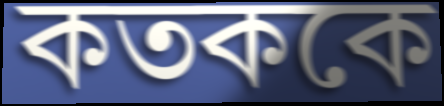
কতককে